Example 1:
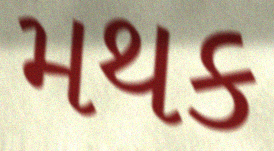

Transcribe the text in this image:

મથક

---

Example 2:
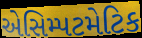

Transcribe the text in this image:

એસિમ્પટમેટિક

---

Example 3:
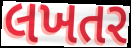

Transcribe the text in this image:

લખતર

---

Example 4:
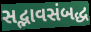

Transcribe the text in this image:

સદ્ભાવસંબદ્ધ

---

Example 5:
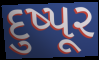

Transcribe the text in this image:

દુષ્પૂર